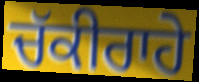
ਚੱਕੀਰਾਹੇ